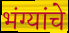
भंग्यांचे